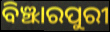
ବିଞ୍ଝାରପୁରୀ